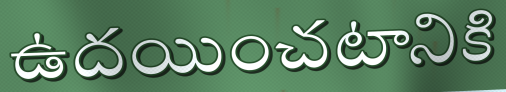
ఉదయించటానికి